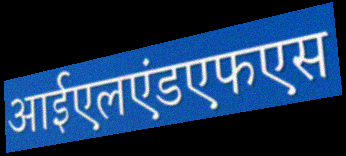
आईएलएंडएफएस